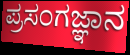
ಪ್ರಸಂಗಜ್ಞಾನ